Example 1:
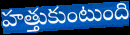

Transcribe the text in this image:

హత్తుకుంటుంది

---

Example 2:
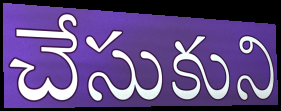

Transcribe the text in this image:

చేసుకుని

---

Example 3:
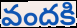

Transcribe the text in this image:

వందకి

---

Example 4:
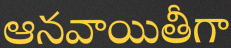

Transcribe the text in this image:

ఆనవాయితీగా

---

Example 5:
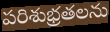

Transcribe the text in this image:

పరిశుభ్రతలను